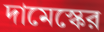
দামেস্কের